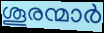
ശൂരന്മാർ